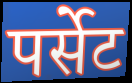
पर्सेट